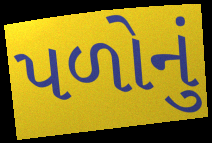
પળોનું